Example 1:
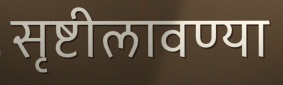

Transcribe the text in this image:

सृष्टीलावण्या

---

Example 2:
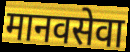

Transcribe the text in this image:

मानवसेवा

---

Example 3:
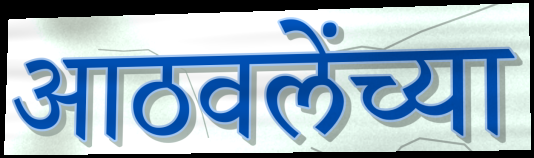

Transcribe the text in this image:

आठवलेंच्या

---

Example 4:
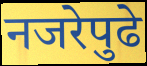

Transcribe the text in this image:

नजरेपुढे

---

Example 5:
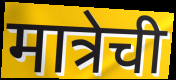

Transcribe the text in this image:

मात्रेची